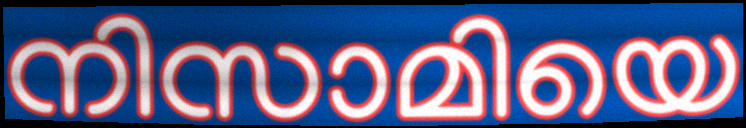
നിസാമിയെ